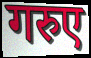
गरुए